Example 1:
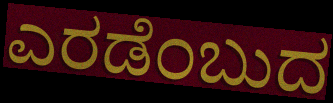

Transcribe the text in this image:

ಎರಡೆಂಬುದ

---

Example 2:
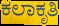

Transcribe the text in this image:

ಕಲಾಕೃತಿ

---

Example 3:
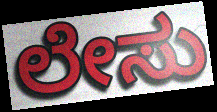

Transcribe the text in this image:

ಲೇಸು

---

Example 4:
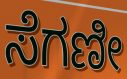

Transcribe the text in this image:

ಸೆಗಣೀ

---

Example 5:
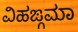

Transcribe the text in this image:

ವಿಹಙ್ಗಮಾ